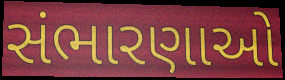
સંભારણાઓ